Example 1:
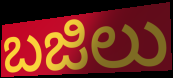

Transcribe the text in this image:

ಬಜಿಲು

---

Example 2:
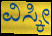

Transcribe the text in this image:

ವಿಸ್ಕೀ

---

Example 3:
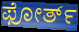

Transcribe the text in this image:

ಫೋರ್ತ್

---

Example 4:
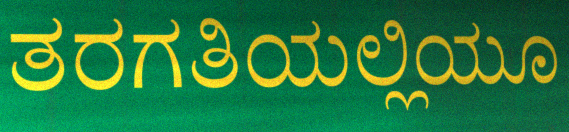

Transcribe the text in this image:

ತರಗತಿಯಲ್ಲಿಯೂ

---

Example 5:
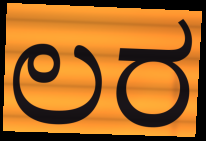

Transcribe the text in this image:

ಲರ